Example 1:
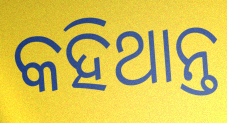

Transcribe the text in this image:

କହିଥାନ୍ତ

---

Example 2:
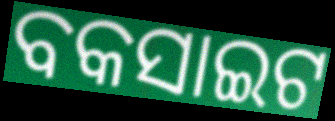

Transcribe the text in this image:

ବକସାଇଟ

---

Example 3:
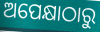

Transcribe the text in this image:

ଅପେକ୍ଷାଠାରୁ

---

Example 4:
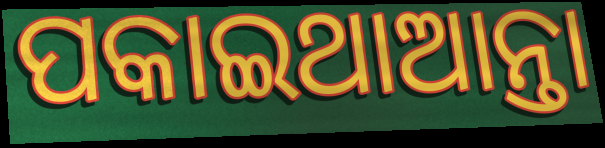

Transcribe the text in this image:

ପକାଇଥାଆନ୍ତା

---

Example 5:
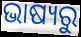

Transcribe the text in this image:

ଭାଷ୍ୟରୁ